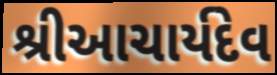
શ્રીઆચાર્યદેવ